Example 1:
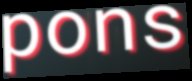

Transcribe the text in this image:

pons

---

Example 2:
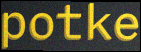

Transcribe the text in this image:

potke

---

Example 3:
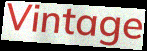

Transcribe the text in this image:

Vintage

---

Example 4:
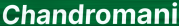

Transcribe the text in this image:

Chandromani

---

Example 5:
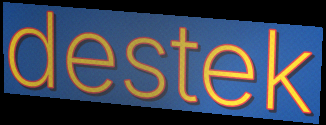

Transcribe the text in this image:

destek